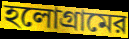
হলোগ্রামের